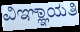
ವಿಞ್ಞಾಯತಿ